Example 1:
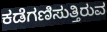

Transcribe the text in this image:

ಕಡೆಗಣಿಸುತ್ತಿರುವ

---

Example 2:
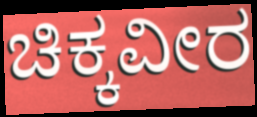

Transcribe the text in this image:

ಚಿಕ್ಕವೀರ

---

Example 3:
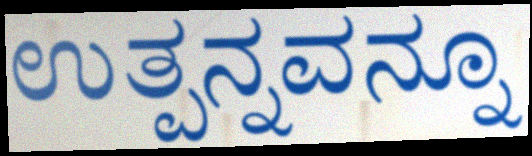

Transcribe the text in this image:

ಉತ್ಪನ್ನವನ್ನೂ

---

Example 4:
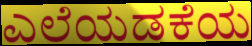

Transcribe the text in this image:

ಎಲೆಯಡಕೆಯ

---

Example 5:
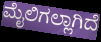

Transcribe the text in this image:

ಮೈಲಿಗಲ್ಲಾಗಿದೆ